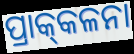
ପ୍ରାକ୍‌କଳନା